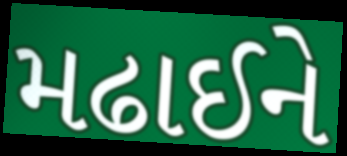
મઢાઈને